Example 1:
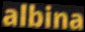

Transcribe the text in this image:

albina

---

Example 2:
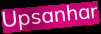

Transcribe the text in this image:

Upsanhar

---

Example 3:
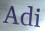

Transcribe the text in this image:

Adi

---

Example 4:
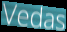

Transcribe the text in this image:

Vedas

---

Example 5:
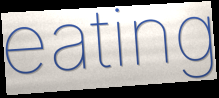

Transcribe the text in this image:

eating